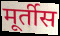
मूर्तीस